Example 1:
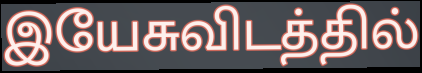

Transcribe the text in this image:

இயேசுவிடத்தில்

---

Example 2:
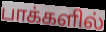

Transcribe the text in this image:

பாக்களில்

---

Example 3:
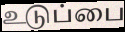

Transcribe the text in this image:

உடுப்பை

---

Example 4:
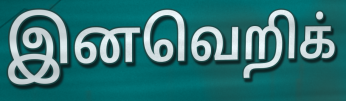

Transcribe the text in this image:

இனவெறிக்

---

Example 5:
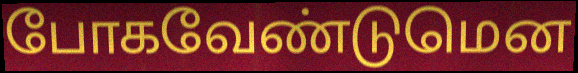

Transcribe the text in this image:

போகவேண்டுமென